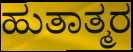
ಹುತಾತ್ಮರ